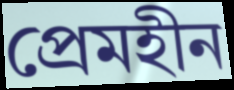
প্রেমহীন